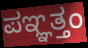
ಪಞ್ಞತ್ತಂ